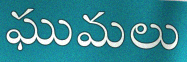
ఘుమలు